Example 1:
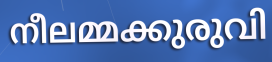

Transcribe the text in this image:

നീലമ്മക്കുരുവി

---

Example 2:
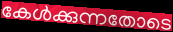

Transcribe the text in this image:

കേൾക്കുന്നതോടെ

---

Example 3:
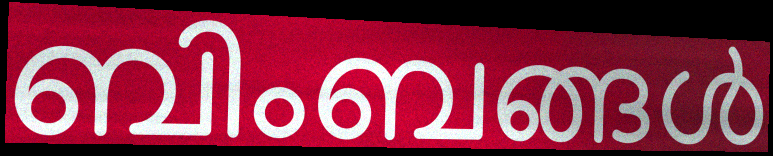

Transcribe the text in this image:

ബിംബങ്ങൾ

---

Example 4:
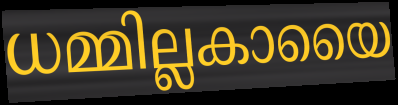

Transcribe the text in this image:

ധമ്മില്ലകായൈ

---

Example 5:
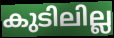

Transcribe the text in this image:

കുടിലില്ല